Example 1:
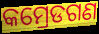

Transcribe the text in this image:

କମ୍ରେଡଗଣ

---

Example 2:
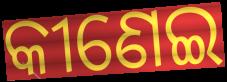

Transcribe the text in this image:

କୀଣେଇ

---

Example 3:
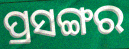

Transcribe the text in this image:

ପ୍ରସଙ୍ଗର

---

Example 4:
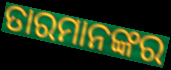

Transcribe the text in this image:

ତାରମାନଙ୍କର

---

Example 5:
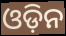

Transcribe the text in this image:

ଓଡ଼ିନ